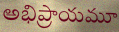
అభిప్రాయమూ